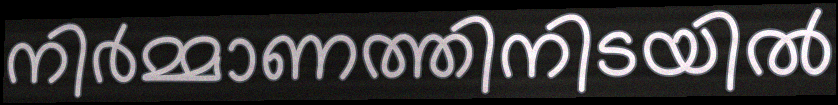
നിർമ്മാണത്തിനിടയിൽ